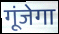
गूंजेगा